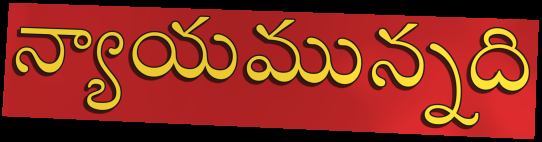
న్యాయమున్నది